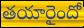
తయారైందో